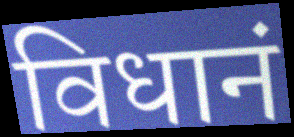
विधानं